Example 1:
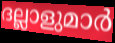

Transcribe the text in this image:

ദല്ലാളുമാർ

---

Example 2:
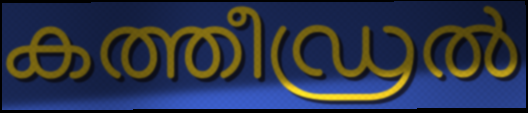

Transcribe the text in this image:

കത്തീഡ്രൽ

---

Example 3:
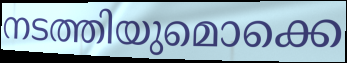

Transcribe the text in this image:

നടത്തിയുമൊക്കെ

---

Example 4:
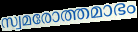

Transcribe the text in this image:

സ്വമരോത്തമാഭം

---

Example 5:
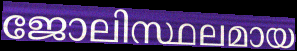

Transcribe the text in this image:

ജോലിസ്ഥലമായ